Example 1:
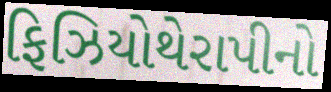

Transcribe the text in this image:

ફિઝિયોથેરાપીનો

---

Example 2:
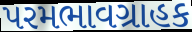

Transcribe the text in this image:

પરમભાવગ્રાહક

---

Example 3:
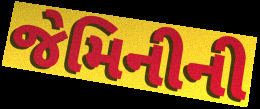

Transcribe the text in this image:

જેમિનીની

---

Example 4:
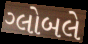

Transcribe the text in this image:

ગ્લોબલે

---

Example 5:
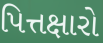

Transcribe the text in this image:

પિત્તક્ષારો